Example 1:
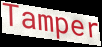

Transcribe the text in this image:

Tamper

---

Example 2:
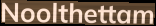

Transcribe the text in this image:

Noolthettam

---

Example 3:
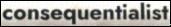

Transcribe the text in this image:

consequentialist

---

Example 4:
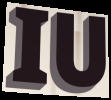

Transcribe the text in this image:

IU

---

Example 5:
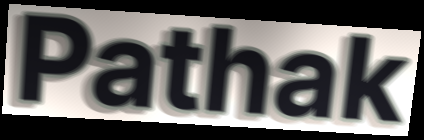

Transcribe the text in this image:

Pathak